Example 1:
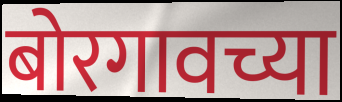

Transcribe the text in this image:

बोरगावच्या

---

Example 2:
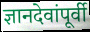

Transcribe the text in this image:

ज्ञानदेवांपूर्वी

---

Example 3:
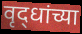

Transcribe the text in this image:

वृद्धांच्या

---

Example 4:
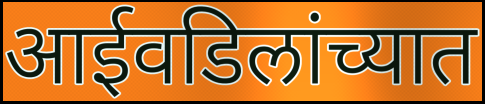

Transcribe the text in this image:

आईवडिलांच्यात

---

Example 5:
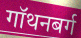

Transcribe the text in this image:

गॉथनबर्ग